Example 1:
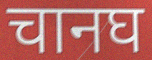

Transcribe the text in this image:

चानघ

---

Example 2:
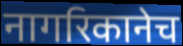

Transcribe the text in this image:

नागरिकानेच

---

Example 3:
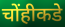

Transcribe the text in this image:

चोंहीकडे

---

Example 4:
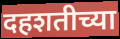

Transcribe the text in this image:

दहशतीच्या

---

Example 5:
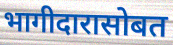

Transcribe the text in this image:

भागीदारासोबत